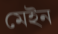
মেইন